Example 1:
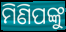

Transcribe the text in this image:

ମିଣିପଙ୍କୁ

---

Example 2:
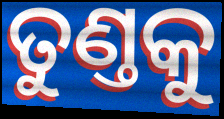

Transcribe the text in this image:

ତୁଣ୍ତକୁ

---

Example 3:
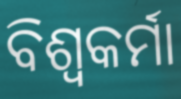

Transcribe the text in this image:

ବିଶ୍ବକର୍ମା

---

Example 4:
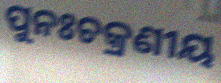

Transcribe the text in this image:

ପୁନଃଚକ୍ରଣୀୟ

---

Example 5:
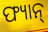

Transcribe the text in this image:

ଫ୍ୟାନ୍